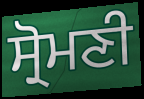
ਸ੍ਰੋਮਣੀ